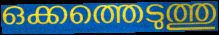
ഒക്കത്തെടുത്തു